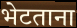
भेटताना